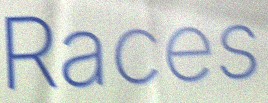
Races